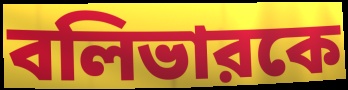
বলিভারকে